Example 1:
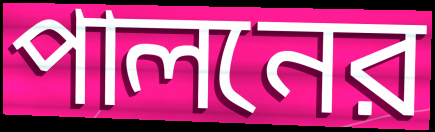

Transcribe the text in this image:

পালনের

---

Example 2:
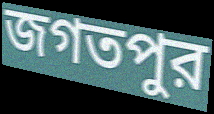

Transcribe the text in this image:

জগতপুর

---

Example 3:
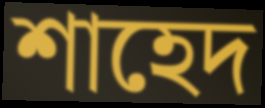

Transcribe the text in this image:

শাহেদ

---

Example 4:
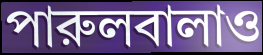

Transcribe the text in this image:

পারুলবালাও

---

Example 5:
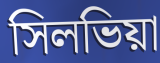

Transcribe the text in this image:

সিলভিয়া